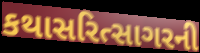
કથાસરિત્સાગરની